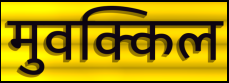
मुवक्किल